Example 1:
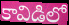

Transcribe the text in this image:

కావిడిలో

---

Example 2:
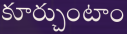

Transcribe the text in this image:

కూర్చుంటాం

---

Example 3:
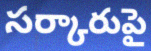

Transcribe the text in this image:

సర్కారుపై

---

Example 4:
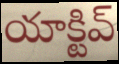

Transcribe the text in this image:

యాక్టివ్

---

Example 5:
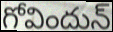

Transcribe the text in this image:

గోవిందున్